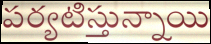
పర్యటిస్తున్నాయి